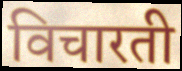
विचारती